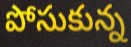
పోసుకున్న